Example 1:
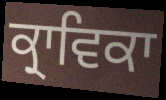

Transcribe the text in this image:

ਕ੍ਰਾਵਿਕਾ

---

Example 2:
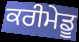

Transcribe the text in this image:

ਕਰੀਮੇਡੂ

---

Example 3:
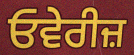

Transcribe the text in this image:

ਓਵੇਰੀਜ਼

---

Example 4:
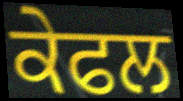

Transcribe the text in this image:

ਕੇਫਲ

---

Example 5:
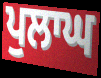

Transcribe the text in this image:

ਪੁਲਾਘ